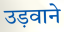
उड़वाने